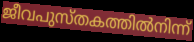
ജീവപുസ്തകത്തിൽനിന്ന്